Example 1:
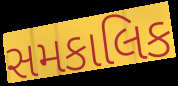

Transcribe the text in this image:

સમકાલિક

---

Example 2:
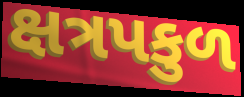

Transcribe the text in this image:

ક્ષત્રપકુળ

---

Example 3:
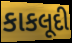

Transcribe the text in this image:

કાકલૂદી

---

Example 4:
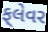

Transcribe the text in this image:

ફ્‌લેવર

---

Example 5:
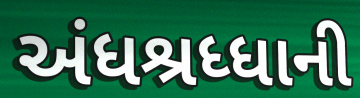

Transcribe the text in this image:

અંધશ્રધ્ધાની